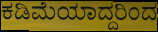
ಕಡಿಮೆಯಾದ್ದರಿಂದ